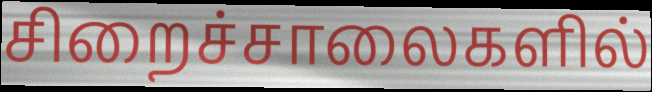
சிறைச்சாலைகளில்